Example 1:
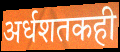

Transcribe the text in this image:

अर्धशतकही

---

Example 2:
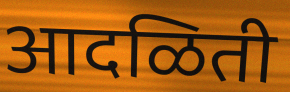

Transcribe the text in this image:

आदळिती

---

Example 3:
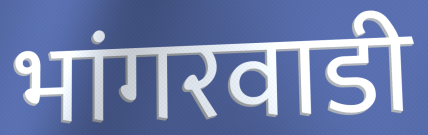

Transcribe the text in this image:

भांगरवाडी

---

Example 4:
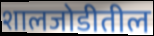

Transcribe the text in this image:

शालजोडीतील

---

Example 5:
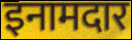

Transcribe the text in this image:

इनामदार